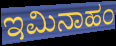
ಇಮಿನಾಹಂ